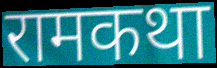
रामकथा